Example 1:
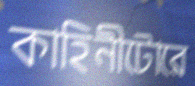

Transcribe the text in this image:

কাহিনীটোৱে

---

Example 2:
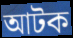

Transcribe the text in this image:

আটক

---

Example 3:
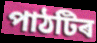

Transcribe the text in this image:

পাঠটিৰ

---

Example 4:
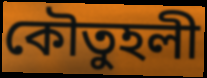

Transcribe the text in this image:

কৌতুহলী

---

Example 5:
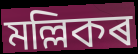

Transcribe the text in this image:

মল্লিকৰ